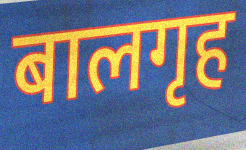
बालगृह